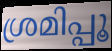
ശ്രമിപ്പൂ